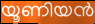
യൂണിയൻ